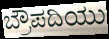
ಬ್ರೌಪದಿಯು